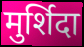
मुर्शिदा